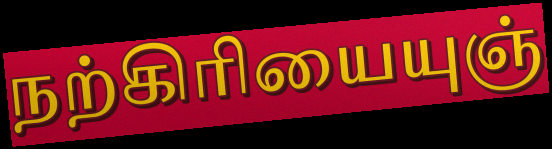
நற்கிரியையுஞ்